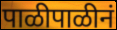
पाळीपाळीनं